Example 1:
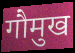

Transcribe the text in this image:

गौमुख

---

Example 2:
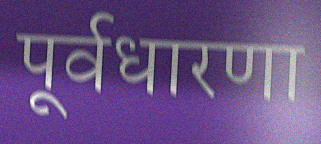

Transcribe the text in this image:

पूर्वधारणा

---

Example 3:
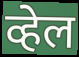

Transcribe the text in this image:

व्हेल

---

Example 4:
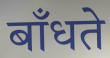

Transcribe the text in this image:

बाँधते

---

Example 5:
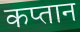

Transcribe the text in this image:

कप्‍तान